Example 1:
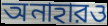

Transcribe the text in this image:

অনাহারও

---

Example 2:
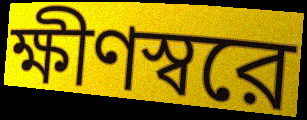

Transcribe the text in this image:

ক্ষীণস্বরে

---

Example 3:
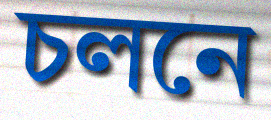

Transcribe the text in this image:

চলনে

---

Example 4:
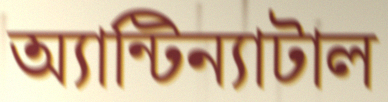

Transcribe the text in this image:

অ্যান্টিন্যাটাল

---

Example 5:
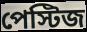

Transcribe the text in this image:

পেস্টিজ